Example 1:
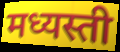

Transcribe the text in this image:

मध्यस्ती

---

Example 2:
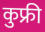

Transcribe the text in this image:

कुफ्री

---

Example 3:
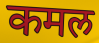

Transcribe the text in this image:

कमल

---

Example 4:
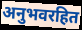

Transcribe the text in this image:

अनुभवरहित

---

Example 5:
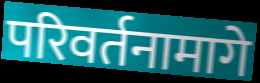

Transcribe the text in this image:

परिवर्तनामागे